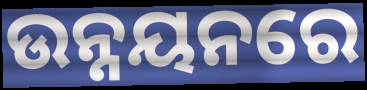
ଉନ୍ନୟନରେ